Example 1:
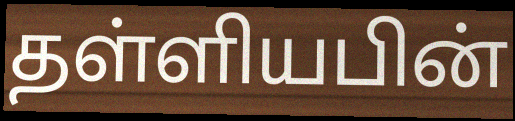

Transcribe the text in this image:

தள்ளியபின்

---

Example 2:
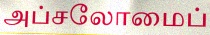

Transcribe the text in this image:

அப்சலோமைப்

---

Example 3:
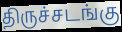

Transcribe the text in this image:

திருச்சடங்கு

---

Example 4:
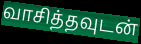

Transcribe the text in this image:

வாசித்தவுடன்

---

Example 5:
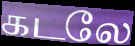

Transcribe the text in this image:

கடலே